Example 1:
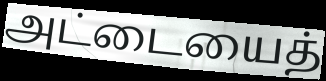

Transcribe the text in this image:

அட்டையைத்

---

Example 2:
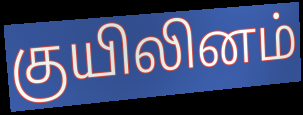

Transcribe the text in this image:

குயிலினம்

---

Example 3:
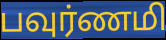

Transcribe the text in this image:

பவுர்ணமி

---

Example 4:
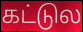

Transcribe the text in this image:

கட்டுல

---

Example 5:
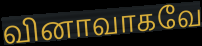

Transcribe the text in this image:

வினாவாகவே